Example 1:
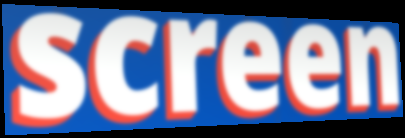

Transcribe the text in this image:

screen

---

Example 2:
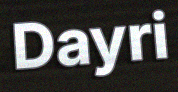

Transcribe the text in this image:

Dayri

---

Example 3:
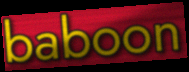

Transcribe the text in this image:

baboon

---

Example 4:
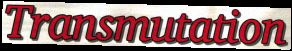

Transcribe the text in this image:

Transmutation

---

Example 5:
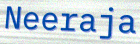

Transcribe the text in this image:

Neeraja